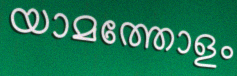
യാമത്തോളം